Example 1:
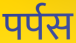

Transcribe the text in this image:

पर्पस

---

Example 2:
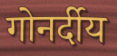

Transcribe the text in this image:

गोनर्दीय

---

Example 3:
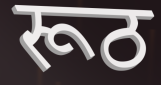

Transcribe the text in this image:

रूठ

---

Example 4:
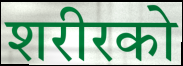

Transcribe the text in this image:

शरीरको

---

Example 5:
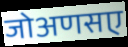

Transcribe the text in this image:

जोअणसए